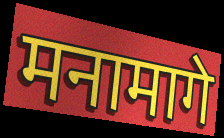
मनामागे